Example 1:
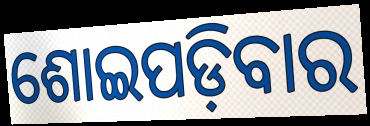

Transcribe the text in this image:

ଶୋଇପଡ଼ିବାର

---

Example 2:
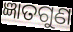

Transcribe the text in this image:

ଜ୍ଞାତଗୁଣ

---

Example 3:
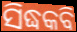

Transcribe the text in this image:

ସିଦ୍ଧକବି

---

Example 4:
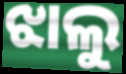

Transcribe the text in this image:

ଝାଲୁ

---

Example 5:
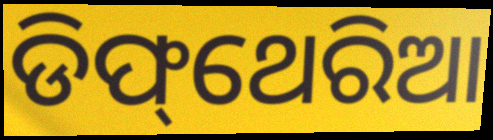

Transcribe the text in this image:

ଡିଫ୍‌ଥେରିଆ